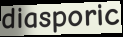
diasporic